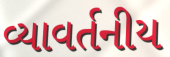
વ્યાવર્તનીય